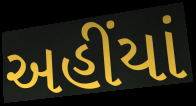
અહીંયાં